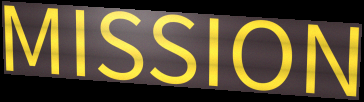
MISSION